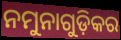
ନମୁନାଗୁଡ଼ିକର